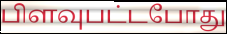
பிளவுபட்டபோது